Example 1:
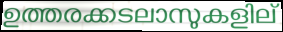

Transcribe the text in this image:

ഉത്തരക്കടലാസുകളില്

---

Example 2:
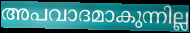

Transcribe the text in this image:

അപവാദമാകുന്നില്ല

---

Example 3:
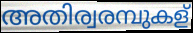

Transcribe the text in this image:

അതിര്വരമ്പുകള്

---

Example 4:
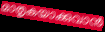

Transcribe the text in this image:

മാതൃകയാക്കുവാൻ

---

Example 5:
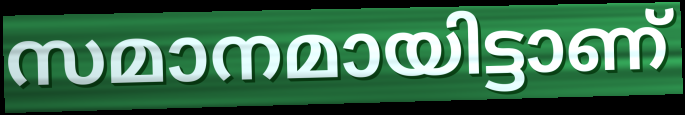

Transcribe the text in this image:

സമാനമായിട്ടാണ്